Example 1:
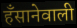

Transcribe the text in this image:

हँसानेवाली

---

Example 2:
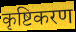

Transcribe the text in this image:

कृष्टिकरण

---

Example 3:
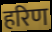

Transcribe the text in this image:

हरिण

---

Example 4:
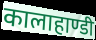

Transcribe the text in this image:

कालाहाण्डी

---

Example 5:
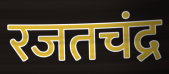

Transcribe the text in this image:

रजतचंद्र